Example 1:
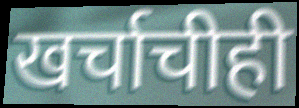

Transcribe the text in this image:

खर्चाचीही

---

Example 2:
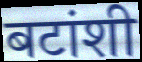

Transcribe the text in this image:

बटांशी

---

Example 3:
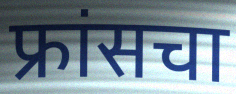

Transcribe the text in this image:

फ्रांसचा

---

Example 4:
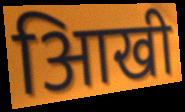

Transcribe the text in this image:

आिखी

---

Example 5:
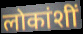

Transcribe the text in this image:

लोकांशीं